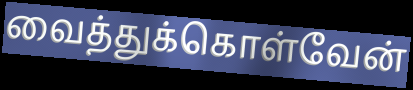
வைத்துக்கொள்வேன்